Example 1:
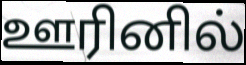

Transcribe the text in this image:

ஊரினில்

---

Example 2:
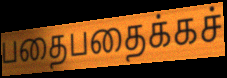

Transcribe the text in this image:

பதைபதைக்கச்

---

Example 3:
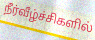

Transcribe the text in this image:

நீர்வீழ்ச்சிகளில்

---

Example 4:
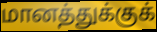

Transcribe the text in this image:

மானத்துக்குக்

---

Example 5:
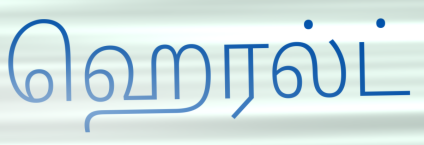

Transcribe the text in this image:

ஹெரல்ட்